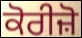
ਕੋਰੀਜ਼ੋ